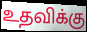
உதவிக்கு